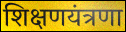
शिक्षणयंत्रणा